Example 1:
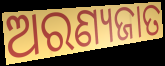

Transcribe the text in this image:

ଅରଣ୍ୟଜାତ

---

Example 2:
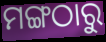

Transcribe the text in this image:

ମଙ୍ଗଠାରୁ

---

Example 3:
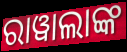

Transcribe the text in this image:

ରାୱାଲାଙ୍କ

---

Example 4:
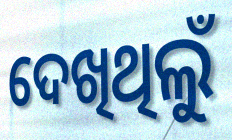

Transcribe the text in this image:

ଦେଖିଥିଲୁଁ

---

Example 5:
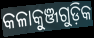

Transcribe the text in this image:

କଳାକୁଞ୍ଜଗୁଡ଼ିକ